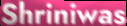
Shriniwas